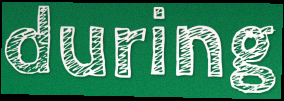
during